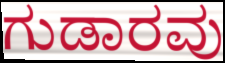
ಗುಡಾರವು